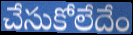
చేసుకోలేదేం